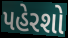
પહેરશો